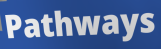
Pathways